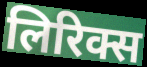
लिरिक्स